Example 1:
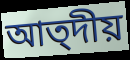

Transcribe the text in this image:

আত্দীয়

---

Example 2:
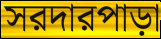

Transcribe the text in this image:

সরদারপাড়া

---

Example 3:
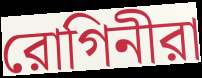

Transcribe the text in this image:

রোগিনীরা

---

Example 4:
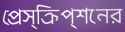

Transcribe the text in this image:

প্রেস্‌ক্রিপ্‌শনের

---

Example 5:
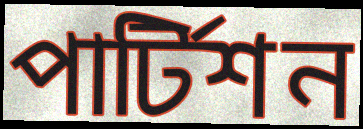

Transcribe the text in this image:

পার্টিশন